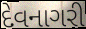
દેવનાગરી